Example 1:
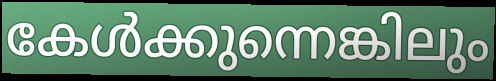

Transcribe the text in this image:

കേൾക്കുന്നെങ്കിലും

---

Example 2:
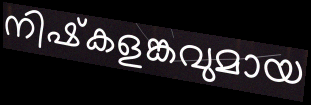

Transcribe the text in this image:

നിഷ്‌കളങ്കവുമായ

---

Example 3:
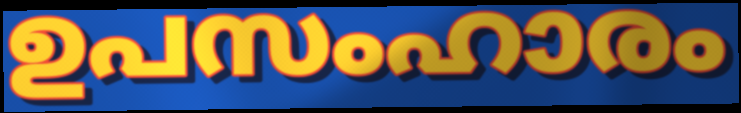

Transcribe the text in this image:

ഉപസംഹാരം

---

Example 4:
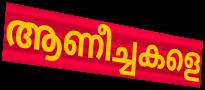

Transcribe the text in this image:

ആണീച്ചകളെ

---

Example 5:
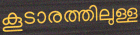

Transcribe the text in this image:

കൂടാരത്തിലുള്ള